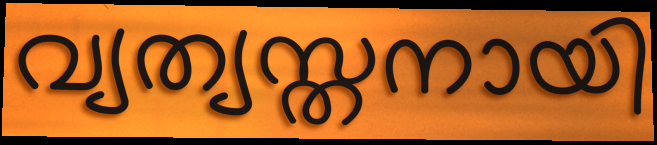
വ്യത്യസ്തനായി